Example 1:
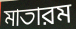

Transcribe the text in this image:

মাতারম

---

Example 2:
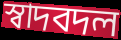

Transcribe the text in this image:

স্বাদবদল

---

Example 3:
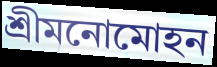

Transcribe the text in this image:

শ্রীমনোমোহন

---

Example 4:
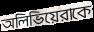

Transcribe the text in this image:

অলিভিয়েরাকে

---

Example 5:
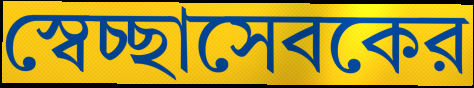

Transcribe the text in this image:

স্বেচ্ছাসেবকের